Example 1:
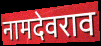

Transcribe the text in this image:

नामदेवराव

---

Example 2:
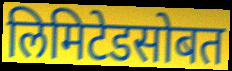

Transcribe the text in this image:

लिमिटेडसोबत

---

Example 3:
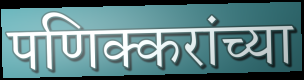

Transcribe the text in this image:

पणिक्करांच्या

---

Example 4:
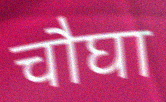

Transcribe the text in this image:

चौघा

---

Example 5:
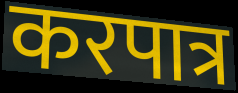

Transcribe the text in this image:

करपात्र